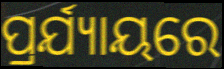
ପ୍ରର୍ଯ୍ୟାୟରେ